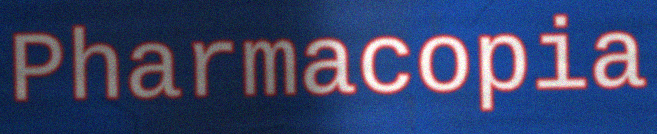
Pharmacopia